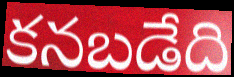
కనబడేది